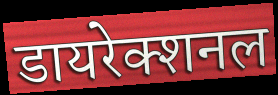
डायरेक्शनल